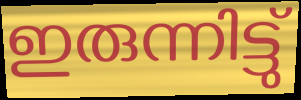
ഇരുന്നിട്ടു്